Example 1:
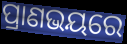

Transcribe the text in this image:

ପ୍ରାଣଭୟରେ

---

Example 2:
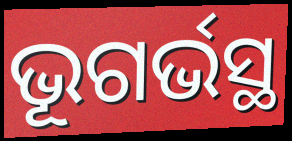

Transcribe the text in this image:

ଭୂଗର୍ଭସ୍ଥ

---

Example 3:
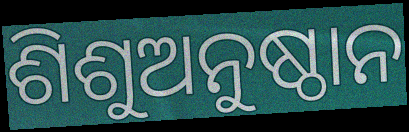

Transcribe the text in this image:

ଶିଶୁଅନୁଷ୍ଠାନ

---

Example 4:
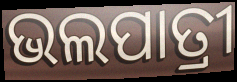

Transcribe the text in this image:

ଭଲପାତ୍ରୀ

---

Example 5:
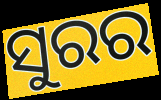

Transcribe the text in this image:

ସୁରର